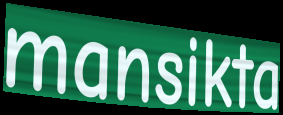
mansikta